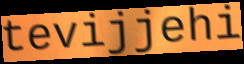
tevijjehi